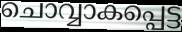
ചൊവ്വാകപ്പെട്ട